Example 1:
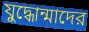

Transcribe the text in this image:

যুদ্ধোন্মাদের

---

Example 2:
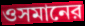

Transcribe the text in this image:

ওসমানের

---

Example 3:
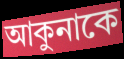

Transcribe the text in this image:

আকুনাকে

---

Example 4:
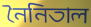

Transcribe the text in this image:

নৈনিতাল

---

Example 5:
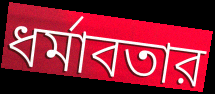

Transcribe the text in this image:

ধর্মাবতার